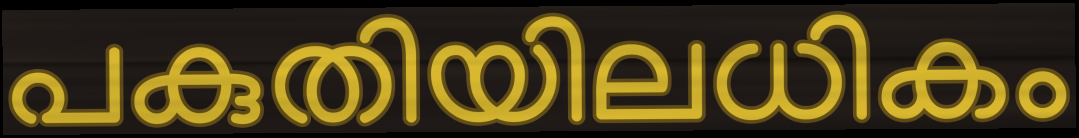
പകുതിയിലധികം